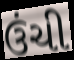
ઉંચી